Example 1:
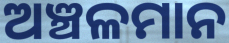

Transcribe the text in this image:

ଅଞ୍ଚଳମାନ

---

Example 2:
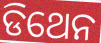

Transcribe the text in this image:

ଡିଥେନ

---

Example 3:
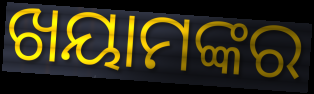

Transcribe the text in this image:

ଖୟାମଙ୍କର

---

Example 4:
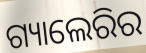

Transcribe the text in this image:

ଗ୍ୟାଲେରିର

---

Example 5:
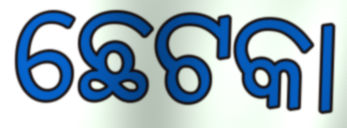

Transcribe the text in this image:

ଛେଟକା